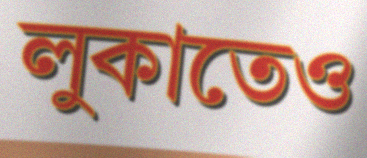
লুকাতেও